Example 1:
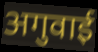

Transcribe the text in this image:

अगुवाई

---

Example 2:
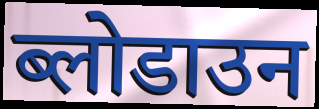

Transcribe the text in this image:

ब्लोडाउन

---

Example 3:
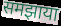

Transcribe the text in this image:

समझाया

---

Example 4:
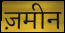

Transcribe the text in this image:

ज़मीन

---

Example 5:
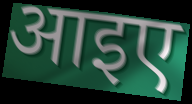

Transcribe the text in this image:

आइए